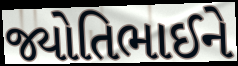
જ્યોતિભાઈને